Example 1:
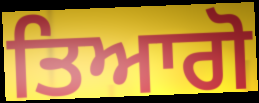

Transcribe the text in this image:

ਤਿਆਗੋ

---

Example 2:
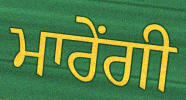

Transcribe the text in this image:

ਮਾਰੇਂਗੀ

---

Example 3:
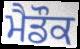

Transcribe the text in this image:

ਮੈਡੌਕ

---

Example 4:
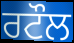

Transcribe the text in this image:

ਰਟੌਲ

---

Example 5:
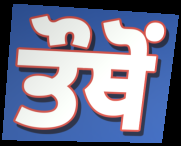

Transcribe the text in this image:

ਤੌਥੋਂ